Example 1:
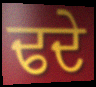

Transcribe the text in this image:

ਢਦੇ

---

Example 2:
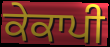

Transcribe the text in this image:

ਕੇਕਾਪੀ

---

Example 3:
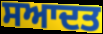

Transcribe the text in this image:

ਸਆਦਤ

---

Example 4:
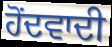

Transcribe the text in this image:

ਹੋਂਦਵਾਦੀ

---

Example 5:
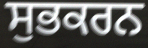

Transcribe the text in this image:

ਸੁਭਕਰਨ